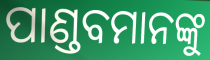
ପାଣ୍ଡବମାନଙ୍କୁ